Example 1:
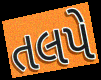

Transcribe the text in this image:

તલપે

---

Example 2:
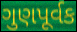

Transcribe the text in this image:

ગુણપૂર્વક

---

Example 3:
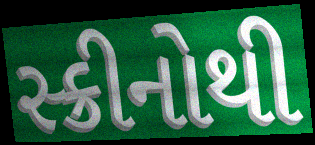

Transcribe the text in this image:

સ્ક્રીનોથી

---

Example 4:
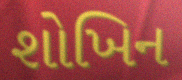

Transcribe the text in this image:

શોખિન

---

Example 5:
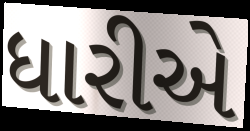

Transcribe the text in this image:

ધારીએ